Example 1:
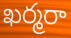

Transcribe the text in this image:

ఖర్మరా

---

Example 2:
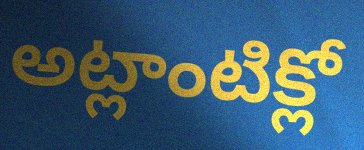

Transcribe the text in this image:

అట్లాంటిక్లో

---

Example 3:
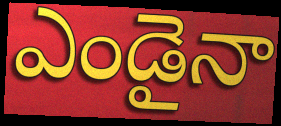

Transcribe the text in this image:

ఎండైనా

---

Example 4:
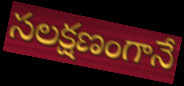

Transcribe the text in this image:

సలక్షణంగానే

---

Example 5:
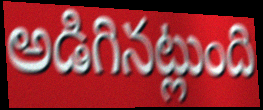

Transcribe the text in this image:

అడిగినట్లుంది